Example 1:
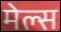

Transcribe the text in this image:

मेल्स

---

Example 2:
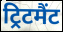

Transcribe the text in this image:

ट्रिटमैंट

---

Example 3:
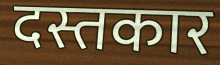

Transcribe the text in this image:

दस्‍तकार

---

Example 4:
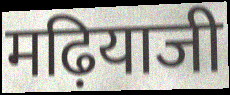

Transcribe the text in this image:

मढ़ियाजी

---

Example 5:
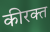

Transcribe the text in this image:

कीरक्त